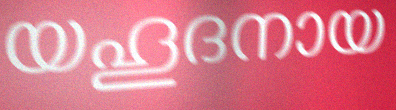
യഹൂദനായ